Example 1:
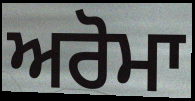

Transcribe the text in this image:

ਅਰੋਮਾ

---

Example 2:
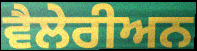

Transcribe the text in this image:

ਵੈਲੇਰੀਅਨ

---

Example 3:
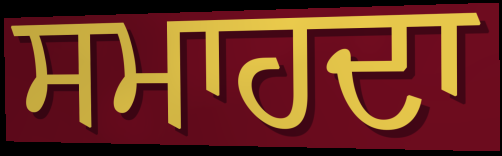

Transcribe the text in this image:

ਸਮਾਹਦਾ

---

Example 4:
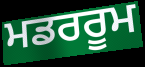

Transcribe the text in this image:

ਮਡਰਰੂਮ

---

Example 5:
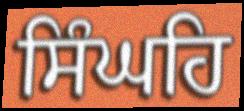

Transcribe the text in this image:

ਸਿੰਘਹਿ